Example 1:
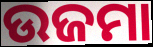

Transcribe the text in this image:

ଉଜମା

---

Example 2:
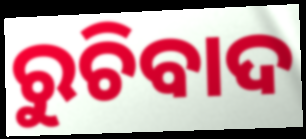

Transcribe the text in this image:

ରୁଚିବାଦ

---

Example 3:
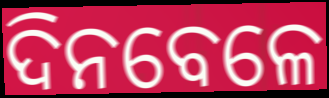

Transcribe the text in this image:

ଦିନବେଳେ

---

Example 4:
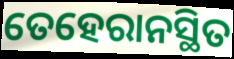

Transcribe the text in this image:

ତେହେରାନସ୍ଥିତ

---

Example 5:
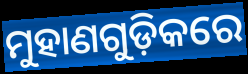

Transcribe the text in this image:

ମୁହାଣଗୁଡ଼ିକରେ